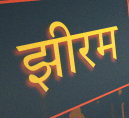
झीरम